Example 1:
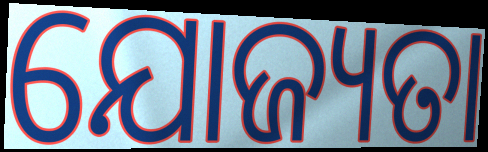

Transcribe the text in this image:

ଯୋଜ୍ୟତା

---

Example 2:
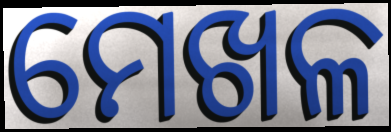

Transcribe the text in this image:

ମେଖଳ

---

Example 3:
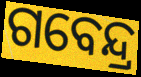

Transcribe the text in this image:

ଗବେନ୍ଦ୍ର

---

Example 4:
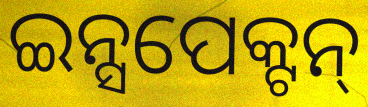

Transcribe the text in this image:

ଇନ୍ସପେକ୍ଟନ୍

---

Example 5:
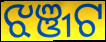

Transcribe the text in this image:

ଝଞ୍ଜଟ